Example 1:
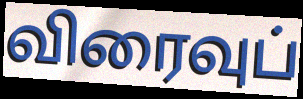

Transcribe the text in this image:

விரைவுப்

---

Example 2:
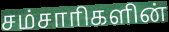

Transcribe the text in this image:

சம்சாரிகளின்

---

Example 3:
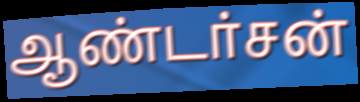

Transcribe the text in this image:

ஆண்டர்சன்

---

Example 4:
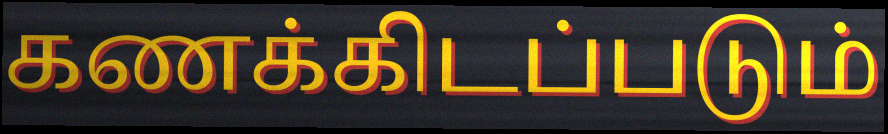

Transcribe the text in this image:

கணக்கிடப்படும்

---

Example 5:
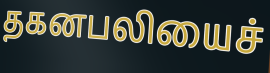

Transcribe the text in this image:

தகனபலியைச்